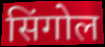
सिंगोल